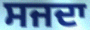
ਸਜਦਾ